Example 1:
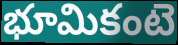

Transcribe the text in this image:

భూమికంటె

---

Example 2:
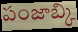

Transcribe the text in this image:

పంజాబ్కి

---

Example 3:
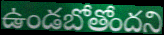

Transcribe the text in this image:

ఉండబోతోందని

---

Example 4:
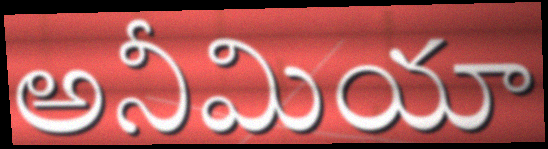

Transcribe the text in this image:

అనీమియా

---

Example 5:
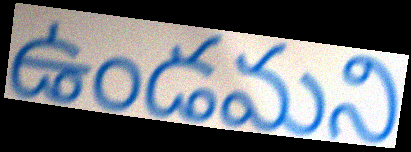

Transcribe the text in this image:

ఉండమని